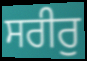
ਸਰੀਰੁ